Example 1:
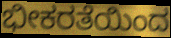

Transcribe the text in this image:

ಭೀಕರತೆಯಿಂದ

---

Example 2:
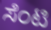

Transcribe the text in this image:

ಸೆಂಟಿ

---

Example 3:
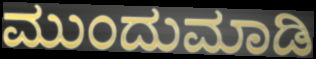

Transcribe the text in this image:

ಮುಂದುಮಾಡಿ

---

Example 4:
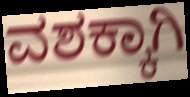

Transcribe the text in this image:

ವಶಕ್ಕಾಗಿ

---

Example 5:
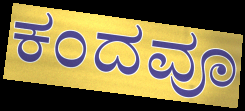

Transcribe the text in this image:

ಕಂದವೂ